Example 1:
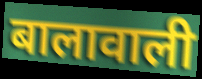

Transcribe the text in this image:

बालावाली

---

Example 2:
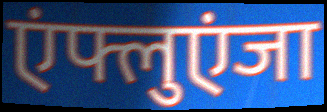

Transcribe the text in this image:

एंफ्लुएंजा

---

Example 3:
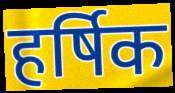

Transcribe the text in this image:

हर्षिक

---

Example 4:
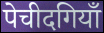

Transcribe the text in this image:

पेचीदगियाँ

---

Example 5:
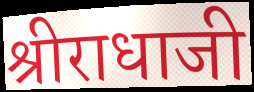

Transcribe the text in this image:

श्रीराधाजी